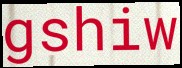
gshiw